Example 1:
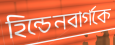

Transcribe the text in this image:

হিন্ডেনবার্গকে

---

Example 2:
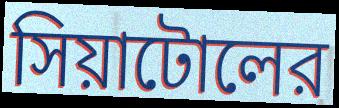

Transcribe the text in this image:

সিয়াটোলের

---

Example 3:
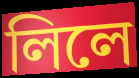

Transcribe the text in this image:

লিলে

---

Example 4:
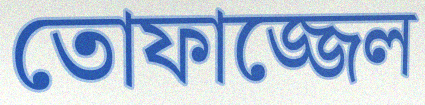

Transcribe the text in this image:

তোফাজ্জেল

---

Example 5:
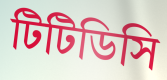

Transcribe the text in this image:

টিটিডিসি